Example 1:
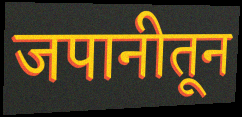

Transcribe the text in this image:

जपानीतून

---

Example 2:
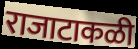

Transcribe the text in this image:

राजाटाकळी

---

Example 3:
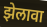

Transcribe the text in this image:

झेलावा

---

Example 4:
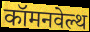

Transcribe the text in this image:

कॉमनवेल्थ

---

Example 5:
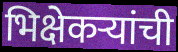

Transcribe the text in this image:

भिक्षेकऱ्यांची